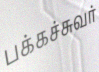
பக்கச்சுவர்